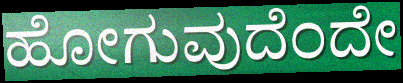
ಹೋಗುವುದೆಂದೇ